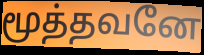
மூத்தவனே